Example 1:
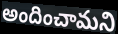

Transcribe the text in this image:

అందించామని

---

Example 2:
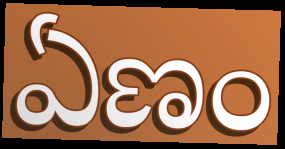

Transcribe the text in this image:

ఏణం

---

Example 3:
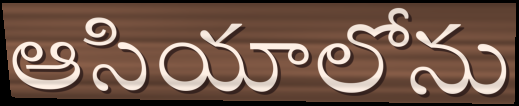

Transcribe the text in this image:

ఆసియాలోను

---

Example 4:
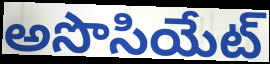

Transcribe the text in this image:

అసొసియేట్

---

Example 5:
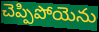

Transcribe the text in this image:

చెప్పిపోయెను